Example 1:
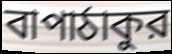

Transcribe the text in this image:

বাপাঠাকুর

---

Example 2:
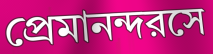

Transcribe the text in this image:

প্রেমানন্দরসে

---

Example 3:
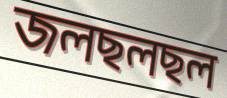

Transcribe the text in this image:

জলছলছল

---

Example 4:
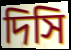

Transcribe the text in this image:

দিসি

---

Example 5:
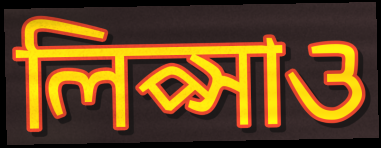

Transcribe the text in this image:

লিপ্সাও